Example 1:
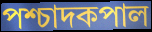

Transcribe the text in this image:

পশ্চাদকপাল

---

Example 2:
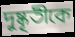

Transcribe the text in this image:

দুষ্কৃতীকে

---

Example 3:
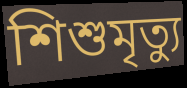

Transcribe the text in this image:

শিশুমৃত্যু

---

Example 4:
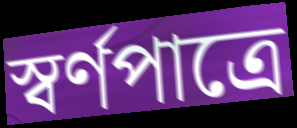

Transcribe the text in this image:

স্বর্ণপাত্রে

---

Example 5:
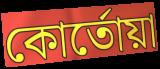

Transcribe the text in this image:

কোর্তোয়া